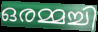
ഒരമ്മച്ചി